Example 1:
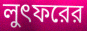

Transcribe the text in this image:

লুৎফরের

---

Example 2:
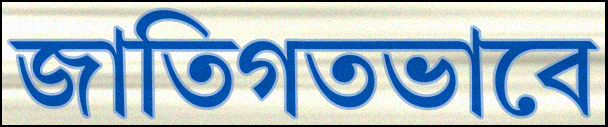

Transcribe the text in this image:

জাতিগতভাবে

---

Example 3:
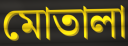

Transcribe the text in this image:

মোতালা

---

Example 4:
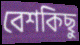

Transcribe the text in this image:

বেশকিছু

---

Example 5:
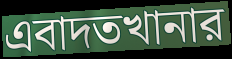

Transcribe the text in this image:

এবাদতখানার